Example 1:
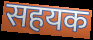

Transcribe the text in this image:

सहयक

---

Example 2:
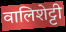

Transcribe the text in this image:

वालिशेट्टी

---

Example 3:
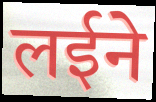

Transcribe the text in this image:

लईने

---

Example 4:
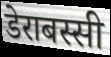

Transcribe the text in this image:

डेराबस्सी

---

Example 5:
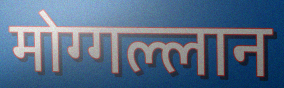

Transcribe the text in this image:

मोग्गल्लान